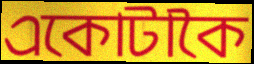
একোটাকৈ